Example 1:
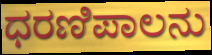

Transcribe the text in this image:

ಧರಣಿಪಾಲನು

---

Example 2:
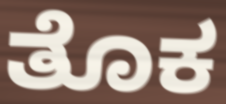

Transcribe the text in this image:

ತೊಕ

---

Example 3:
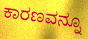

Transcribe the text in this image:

ಕಾರಣವನ್ನೂ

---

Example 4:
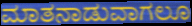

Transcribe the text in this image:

ಮಾತನಾಡುವಾಗಲೂ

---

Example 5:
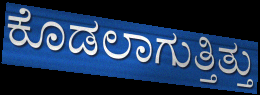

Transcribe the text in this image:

ಕೊಡಲಾಗುತ್ತಿತ್ತು